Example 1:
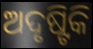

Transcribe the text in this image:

ଅଦୃଷ୍ଟିକି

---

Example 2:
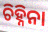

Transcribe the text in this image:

ଚିହ୍ନିନା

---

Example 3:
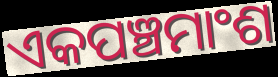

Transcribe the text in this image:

ଏକପଞ୍ଚମାଂଶ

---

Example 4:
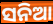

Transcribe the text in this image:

ସନିଆ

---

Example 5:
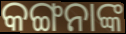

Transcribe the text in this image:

କଙ୍ଗନାଙ୍କ